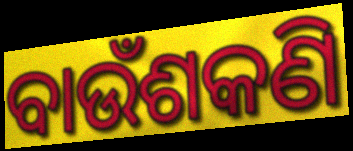
ବାଉଁଶକଣି